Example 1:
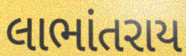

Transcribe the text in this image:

લાભાંતરાય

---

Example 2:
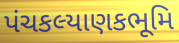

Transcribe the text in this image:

પંચકલ્યાણકભૂમિ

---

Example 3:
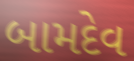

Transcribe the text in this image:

બામદેવ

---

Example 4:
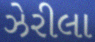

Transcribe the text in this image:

ઝેરીલા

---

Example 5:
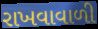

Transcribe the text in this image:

રાખવાવાળી